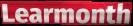
Learmonth